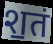
श॒तं